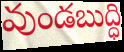
వుండబుద్ధి